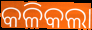
କଳିକଲା